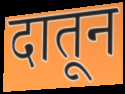
दातून